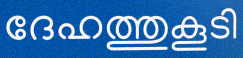
ദേഹത്തുകൂടി